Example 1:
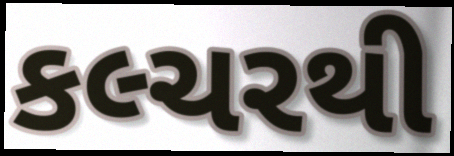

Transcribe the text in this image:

કલ્ચરથી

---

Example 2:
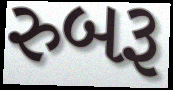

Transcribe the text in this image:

રુબરૂ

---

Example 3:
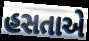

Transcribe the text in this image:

હસતાએ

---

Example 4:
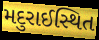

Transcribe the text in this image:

મદુરાઈસ્થિત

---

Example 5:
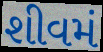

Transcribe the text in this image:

શીવમં